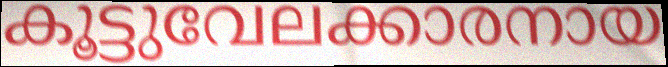
കൂട്ടുവേലക്കാരനായ